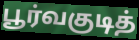
பூர்வகுடித்